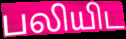
பலியிட